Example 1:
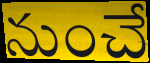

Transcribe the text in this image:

నుంచే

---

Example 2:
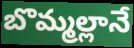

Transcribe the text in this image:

బొమ్మల్లానే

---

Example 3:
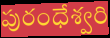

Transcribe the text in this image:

పురంధేశ్వరి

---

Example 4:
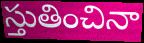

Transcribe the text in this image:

స్తుతించినా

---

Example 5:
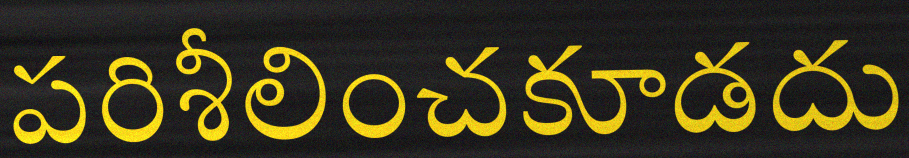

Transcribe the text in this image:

పరిశీలించకూడదు